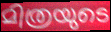
മിത്രയുടെ